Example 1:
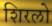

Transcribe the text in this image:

शिरलो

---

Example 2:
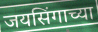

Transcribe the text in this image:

जयसिंगाच्या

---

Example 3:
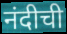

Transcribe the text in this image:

नंदीची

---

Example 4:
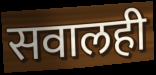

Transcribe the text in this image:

सवालही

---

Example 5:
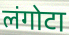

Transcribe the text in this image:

लंगोटा